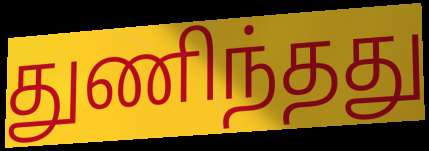
துணிந்தது